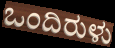
ಒಂದಿರುಳು